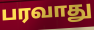
பரவாது